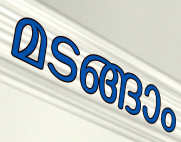
മടങ്ങാം